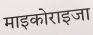
माइकोराइजा